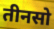
तीनसो